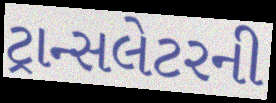
ટ્રાન્સલેટરની